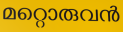
മറ്റൊരുവൻ